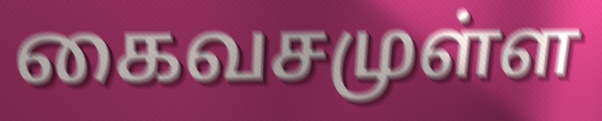
கைவசமுள்ள